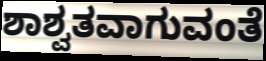
ಶಾಶ್ವತವಾಗುವಂತೆ